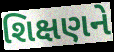
શિક્ષણને